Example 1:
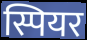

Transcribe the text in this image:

स्पियर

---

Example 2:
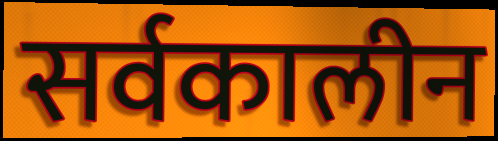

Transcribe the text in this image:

सर्वकालीन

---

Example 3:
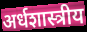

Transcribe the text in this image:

अर्धशास्त्रीय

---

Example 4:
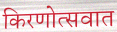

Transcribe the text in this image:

किरणोत्सवात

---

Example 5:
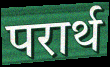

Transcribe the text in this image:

परार्थ